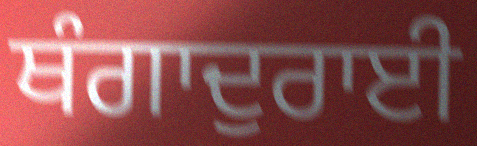
ਥੰਗਾਦੁਰਾਈ